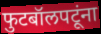
फुटबॉलपटूंना